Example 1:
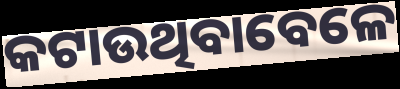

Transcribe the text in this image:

କଟାଉଥିବାବେଳେ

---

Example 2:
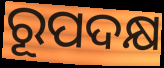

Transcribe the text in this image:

ରୂପଦକ୍ଷ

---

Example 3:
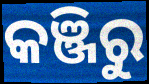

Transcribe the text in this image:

କଞ୍ଜିରୁ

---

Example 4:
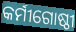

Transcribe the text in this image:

କର୍ମୀଗୋଷ୍ଠୀ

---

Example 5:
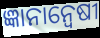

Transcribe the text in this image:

ଜ୍ଞାନାନ୍ୱେଷୀ